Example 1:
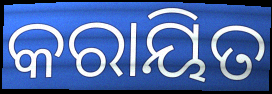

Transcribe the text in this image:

କରାୟିତ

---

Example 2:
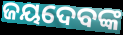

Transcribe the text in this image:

ଜୟଦେବଙ୍କ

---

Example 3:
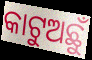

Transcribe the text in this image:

କାଟୁଅଛୁଁ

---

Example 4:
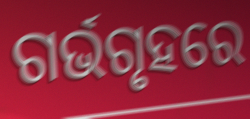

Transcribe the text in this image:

ଗର୍ଭଗୃହରେ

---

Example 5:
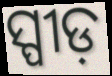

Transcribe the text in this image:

ସ୍ପୀଡ଼